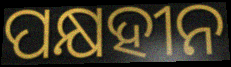
ପକ୍ଷହୀନ